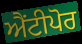
ਐਂਟੀਪੋਰ